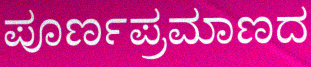
ಪೂರ್ಣಪ್ರಮಾಣದ